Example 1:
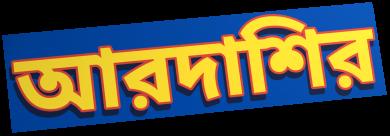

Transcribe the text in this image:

আরদাশির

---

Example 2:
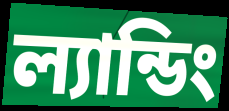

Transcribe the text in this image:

ল্যান্ডিং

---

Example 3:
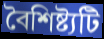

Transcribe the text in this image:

বৈশিষ্ট্যটি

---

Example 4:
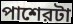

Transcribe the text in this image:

পাশেরটা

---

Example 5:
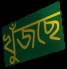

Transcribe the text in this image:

খুঁজছে